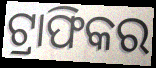
ଟ୍ରାଫିକର